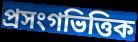
প্ৰসংগভিত্তিক